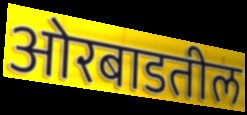
ओरबाडतील